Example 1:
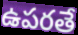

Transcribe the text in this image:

ఉపరతే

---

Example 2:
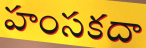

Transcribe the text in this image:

హంసకదా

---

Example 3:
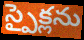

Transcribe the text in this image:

స్పైక్లను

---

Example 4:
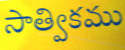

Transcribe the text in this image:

సాత్వికము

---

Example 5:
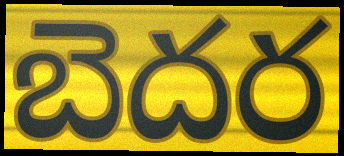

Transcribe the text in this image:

బెదర